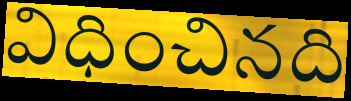
విధించినది